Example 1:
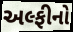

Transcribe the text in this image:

અલ્ફીનો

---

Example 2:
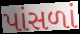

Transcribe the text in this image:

પાંસળાં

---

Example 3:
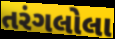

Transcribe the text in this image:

તરંગલોલા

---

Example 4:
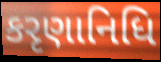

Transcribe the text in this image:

કરૃણાનિધિ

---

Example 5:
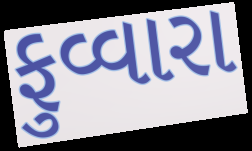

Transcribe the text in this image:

ફુવ્વારા